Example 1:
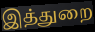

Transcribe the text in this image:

இத்துறை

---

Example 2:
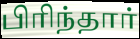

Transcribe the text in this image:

பிரிந்தார்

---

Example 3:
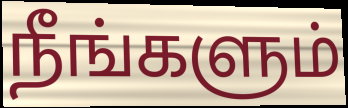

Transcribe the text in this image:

நீங்களும்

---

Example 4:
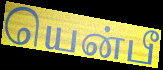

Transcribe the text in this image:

யென்பீ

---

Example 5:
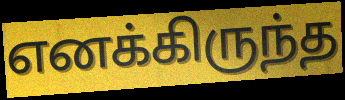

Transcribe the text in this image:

எனக்கிருந்த